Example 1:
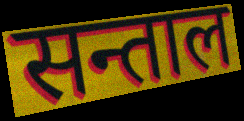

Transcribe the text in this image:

सन्ताल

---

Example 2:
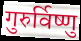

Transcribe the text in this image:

गुरुर्विष्णु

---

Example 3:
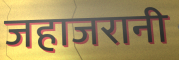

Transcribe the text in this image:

जहाजरानी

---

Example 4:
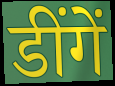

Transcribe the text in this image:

डींगें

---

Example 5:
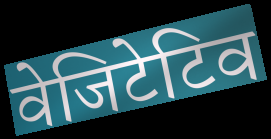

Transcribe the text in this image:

वेजिटेटिव